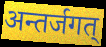
अन्तर्जगत्